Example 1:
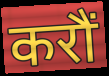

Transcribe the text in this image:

करौं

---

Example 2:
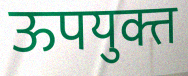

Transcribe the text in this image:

ऊपयुक्त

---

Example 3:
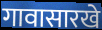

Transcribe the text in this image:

गावासारखे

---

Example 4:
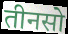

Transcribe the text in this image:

तीनसो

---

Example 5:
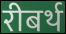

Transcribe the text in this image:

रीबर्थ